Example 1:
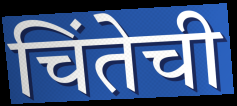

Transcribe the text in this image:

चिंतेची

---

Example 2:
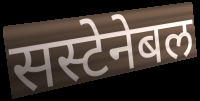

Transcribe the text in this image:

सस्टेनेबल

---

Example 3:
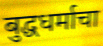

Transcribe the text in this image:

बुद्धधर्माचा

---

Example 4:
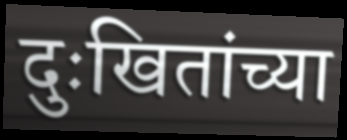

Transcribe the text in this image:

दुःखितांच्या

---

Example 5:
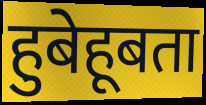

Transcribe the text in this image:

हुबेहूबता